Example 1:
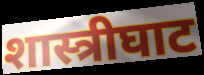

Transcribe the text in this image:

शास्त्रीघाट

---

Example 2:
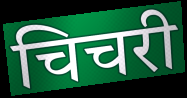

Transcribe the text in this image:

चिचरी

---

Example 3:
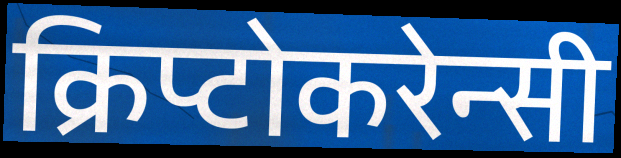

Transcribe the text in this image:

क्रिप्टोकरेन्सी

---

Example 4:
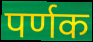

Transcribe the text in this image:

पर्णक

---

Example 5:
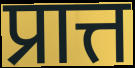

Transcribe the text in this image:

प्रात्त